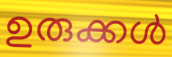
ഉരുക്കൾ